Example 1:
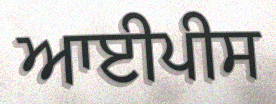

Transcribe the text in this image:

ਆਈਪੀਸ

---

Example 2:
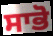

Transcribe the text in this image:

ਸਾਭੋ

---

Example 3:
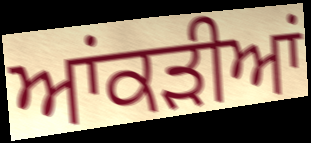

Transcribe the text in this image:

ਆਂਕੜੀਆਂ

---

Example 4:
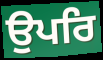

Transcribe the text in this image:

ਉਪਰਿ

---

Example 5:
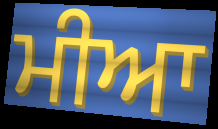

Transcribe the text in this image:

ਮੀਆ